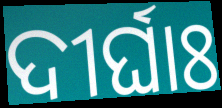
ଦୀର୍ଘାଃ